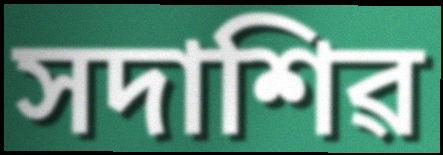
সদাশিৱ